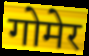
गोमेर